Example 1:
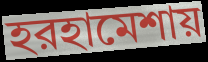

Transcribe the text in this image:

হরহামেশায়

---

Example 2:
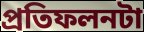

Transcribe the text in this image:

প্রতিফলনটা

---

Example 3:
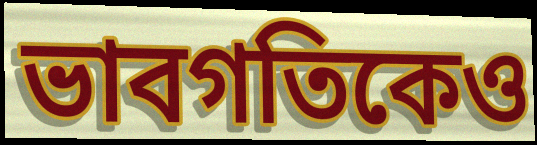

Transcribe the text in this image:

ভাবগতিকেও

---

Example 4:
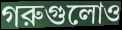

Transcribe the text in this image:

গরুগুলোও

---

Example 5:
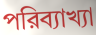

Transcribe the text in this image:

পরিব্যাখ্যা